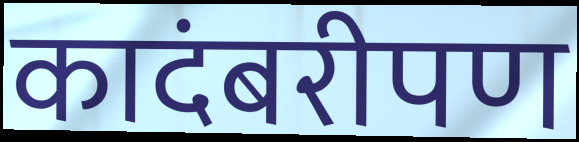
कादंबरीपण